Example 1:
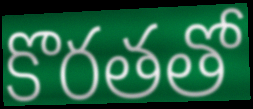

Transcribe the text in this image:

కొరతతో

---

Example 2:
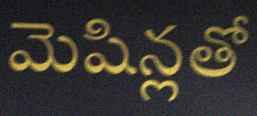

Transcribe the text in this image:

మెషిన్లతో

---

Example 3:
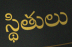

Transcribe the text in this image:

స్థితులు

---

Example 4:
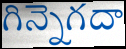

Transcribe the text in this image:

గిన్నెగదా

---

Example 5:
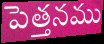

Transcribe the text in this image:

పెత్తనము